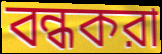
বন্ধকরা